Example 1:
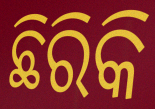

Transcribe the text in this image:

ଛିରିକି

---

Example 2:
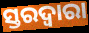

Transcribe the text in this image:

ସ୍ତରଦ୍ୱାରା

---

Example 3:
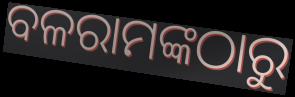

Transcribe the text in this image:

ବଳରାମଙ୍କଠାରୁ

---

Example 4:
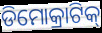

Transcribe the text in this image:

ଡିମୋକ୍ରାଟିକ୍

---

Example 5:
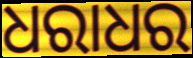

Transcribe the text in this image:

ଧରାଧର